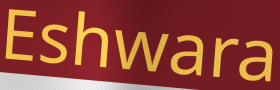
Eshwara